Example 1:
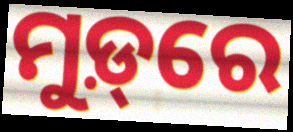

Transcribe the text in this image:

ମୁଡ଼୍‌ରେ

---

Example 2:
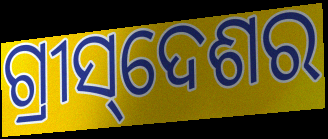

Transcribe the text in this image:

ଗ୍ରୀସ୍‌ଦେଶର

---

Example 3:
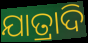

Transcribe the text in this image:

ଯାତ୍ରାଦି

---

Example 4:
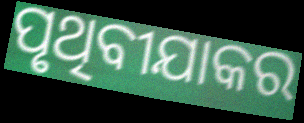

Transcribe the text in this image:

ପୃଥିବୀଯାକର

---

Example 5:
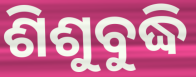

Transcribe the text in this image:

ଶିଶୁବୁଦ୍ଧି